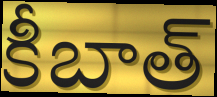
కీబాత్